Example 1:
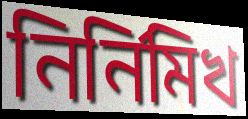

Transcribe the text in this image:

নির্নিমিখ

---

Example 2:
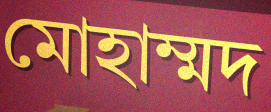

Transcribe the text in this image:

মোহাম্মদ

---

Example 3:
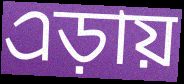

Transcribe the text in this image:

এড়ায়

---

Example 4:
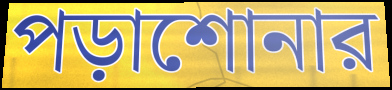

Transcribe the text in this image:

পড়াশোনার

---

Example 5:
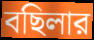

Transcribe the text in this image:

বছিলার